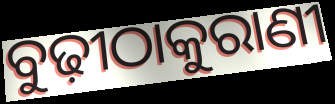
ବୁଢ଼ୀଠାକୁରାଣୀ